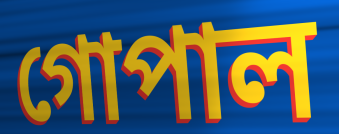
গোপাল